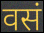
वसं